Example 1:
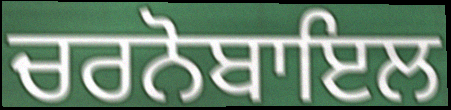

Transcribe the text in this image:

ਚਰਨੋਬਾਇਲ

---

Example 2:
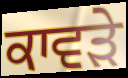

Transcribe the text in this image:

ਕਾਵੜੇ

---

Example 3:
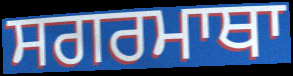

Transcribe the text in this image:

ਸਗਰਮਾਥਾ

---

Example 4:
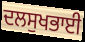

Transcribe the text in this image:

ਦਲਸੁਖਭਾਈ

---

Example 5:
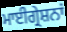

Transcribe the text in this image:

ਮਾਈਗ੍ਰੇਸ਼ਨਾਂ